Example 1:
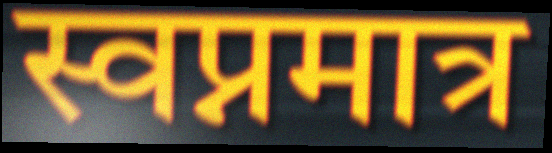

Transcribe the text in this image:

स्वप्नमात्र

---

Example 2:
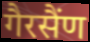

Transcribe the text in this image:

गैरसैंण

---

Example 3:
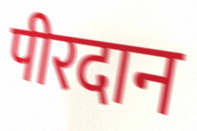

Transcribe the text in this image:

पीरदान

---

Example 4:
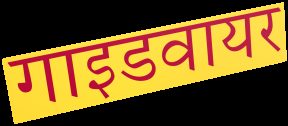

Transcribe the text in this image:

गाइडवायर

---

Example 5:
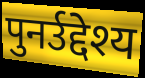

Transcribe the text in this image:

पुनर्उद्देश्य